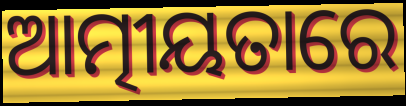
ଆତ୍ମୀୟତାରେ